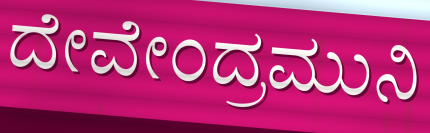
ದೇವೇಂದ್ರಮುನಿ